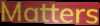
Matters